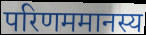
परिणममानस्य